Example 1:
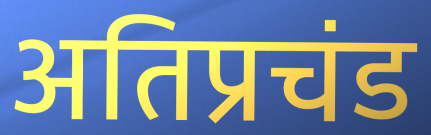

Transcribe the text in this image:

अतिप्रचंड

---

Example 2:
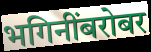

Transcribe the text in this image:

भगिनींबरोबर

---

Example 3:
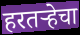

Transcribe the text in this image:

हरतऱ्हेचा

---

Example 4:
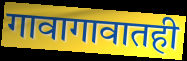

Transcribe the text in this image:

गावागावातही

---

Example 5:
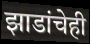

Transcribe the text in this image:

झाडांचेही